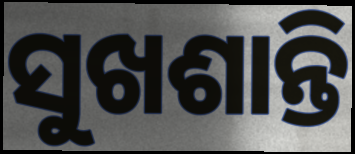
ସୁଖଶାନ୍ତି